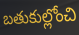
బతుకుల్లోంచి